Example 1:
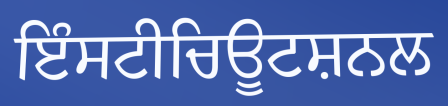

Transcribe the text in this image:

ਇੰਸਟੀਚਿਊਟਸ਼ਨਲ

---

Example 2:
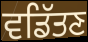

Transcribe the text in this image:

ਵਡਿੱਤਣ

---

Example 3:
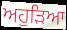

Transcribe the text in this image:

ਅਹੁੜਿਆ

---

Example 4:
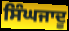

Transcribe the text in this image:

ਸਿੰਘਜਾਦੂ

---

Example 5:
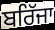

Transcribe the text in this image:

ਬਰਿੱਜਾ